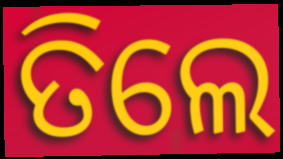
ତିଲେ